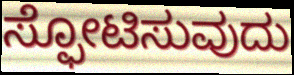
ಸ್ಫೋಟಿಸುವುದು